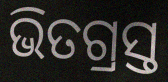
ଭିତଗ୍ରସ୍ତ